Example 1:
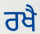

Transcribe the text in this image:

ਰਖੈ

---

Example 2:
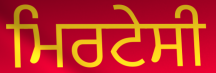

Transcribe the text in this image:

ਮਿਰਟੇਸੀ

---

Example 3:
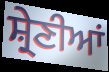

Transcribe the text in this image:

ਸ਼੍ਰੇਣੀਆਂ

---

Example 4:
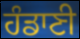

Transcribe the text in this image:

ਹੰਡਾਣੀ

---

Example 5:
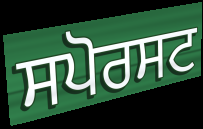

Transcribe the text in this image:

ਸਪੋਰਸਟ